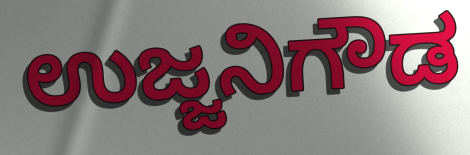
ಉಜ್ಜನಿಗೌಡ